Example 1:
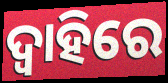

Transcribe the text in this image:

ଦ୍ୱାହିରେ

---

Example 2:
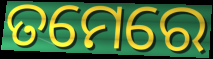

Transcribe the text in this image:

ତମେରେ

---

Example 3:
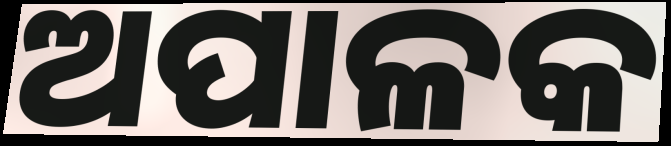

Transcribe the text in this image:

ଅପାଳକ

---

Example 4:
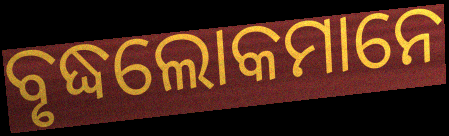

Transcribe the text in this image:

ବୃଦ୍ଧଲୋକମାନେ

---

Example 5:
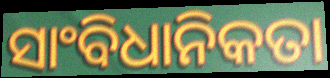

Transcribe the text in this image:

ସାଂବିଧାନିକତା